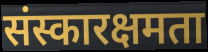
संस्कारक्षमता